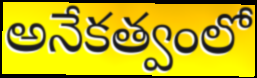
అనేకత్వంలో